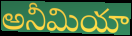
అనీమియా